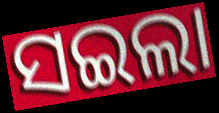
ସଇଲା